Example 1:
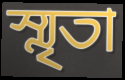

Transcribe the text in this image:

স্মৃতা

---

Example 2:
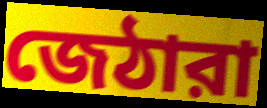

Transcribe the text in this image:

জেঠারা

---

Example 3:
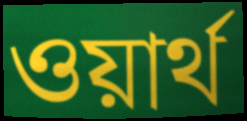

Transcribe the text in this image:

ওয়ার্থ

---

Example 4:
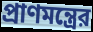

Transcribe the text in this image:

প্রাণমন্ত্রের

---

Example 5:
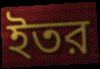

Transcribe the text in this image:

ইতর